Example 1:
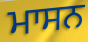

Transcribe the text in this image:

ਮਾਸਨ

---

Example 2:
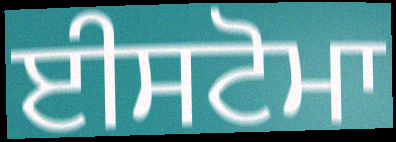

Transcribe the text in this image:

ਈਸਟੋਮਾ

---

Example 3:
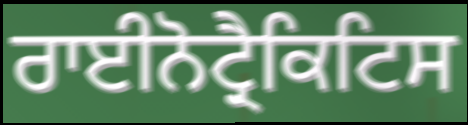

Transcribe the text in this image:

ਰਾਈਨੋਟ੍ਰੈਕਿਟਿਸ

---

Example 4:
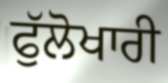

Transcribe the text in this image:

ਫੁੱਲੋਖਾਰੀ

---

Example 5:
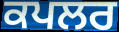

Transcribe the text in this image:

ਕਪਲਰ